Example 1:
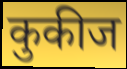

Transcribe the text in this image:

कुकीज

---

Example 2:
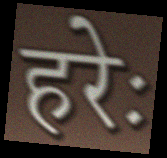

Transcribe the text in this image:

हरेः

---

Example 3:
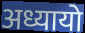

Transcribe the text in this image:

अध्यायो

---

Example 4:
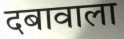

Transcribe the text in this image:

दबावाला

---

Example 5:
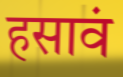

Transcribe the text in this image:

हसावं